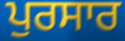
ਪੁਰਸਾਰ